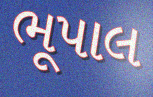
ભૂપાલ